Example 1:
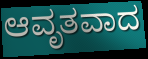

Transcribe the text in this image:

ಆವೃತವಾದ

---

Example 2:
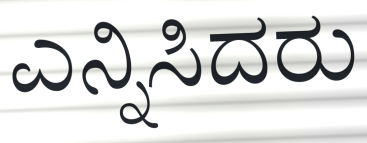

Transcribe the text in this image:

ಎನ್ನಿಸಿದರು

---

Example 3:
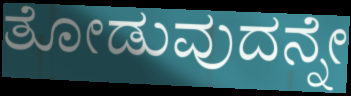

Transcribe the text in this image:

ತೋಡುವುದನ್ನೇ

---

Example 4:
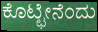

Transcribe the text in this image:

ಕೊಟ್ಟೇನೆಂದು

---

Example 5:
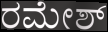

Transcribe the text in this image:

ರಮೇಶ್